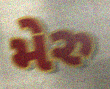
મેરુ